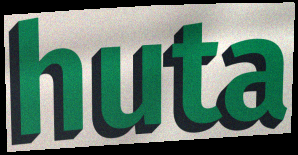
huta